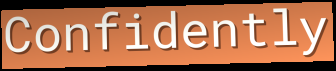
Confidently